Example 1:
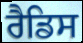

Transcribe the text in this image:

ਰੈਡਿਸ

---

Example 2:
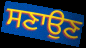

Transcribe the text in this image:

ਸਣਾਉਣ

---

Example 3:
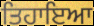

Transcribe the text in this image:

ਤਿਹਾਇਆ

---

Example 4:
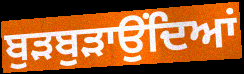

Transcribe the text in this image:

ਬੁੜਬੁੜਾਉਂਦਿਆਂ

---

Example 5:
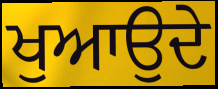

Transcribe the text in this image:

ਖੁਆਉਦੇ